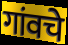
गांवचे